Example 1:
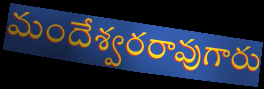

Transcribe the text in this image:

మందేశ్వరరావుగారు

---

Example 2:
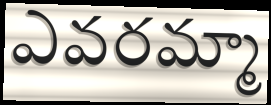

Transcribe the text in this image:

ఎవరమ్మా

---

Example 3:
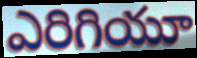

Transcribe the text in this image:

ఎరిగియూ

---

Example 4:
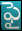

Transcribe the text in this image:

ఫై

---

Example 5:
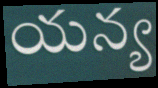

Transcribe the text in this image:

యన్య